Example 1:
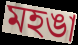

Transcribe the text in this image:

মহঙা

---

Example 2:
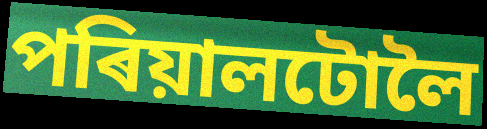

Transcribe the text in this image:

পৰিয়ালটোলৈ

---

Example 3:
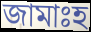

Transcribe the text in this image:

জামাঃহ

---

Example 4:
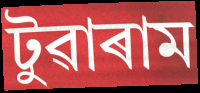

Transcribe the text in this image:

টুৱাৰাম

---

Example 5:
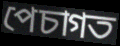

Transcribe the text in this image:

পেচাগত